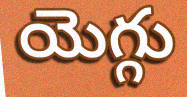
యెగ్గు